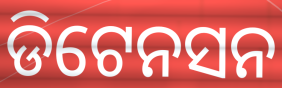
ଡିଟେନସନ